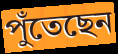
পুঁতেছেন